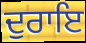
ਦੁਰਾਇ